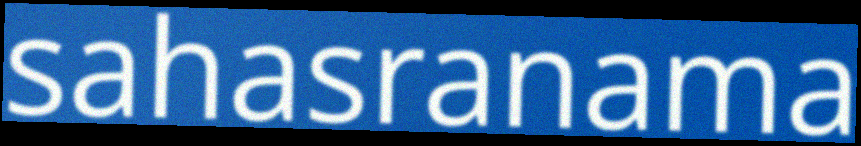
sahasranama